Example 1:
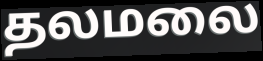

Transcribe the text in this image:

தலமலை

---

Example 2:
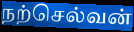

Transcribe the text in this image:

நற்செல்வன்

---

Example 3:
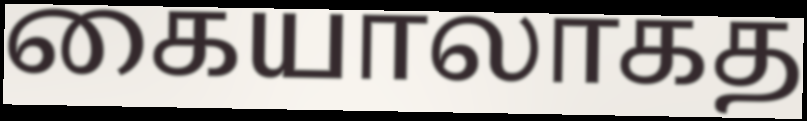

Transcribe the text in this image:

கையாலாகத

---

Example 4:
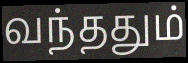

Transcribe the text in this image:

வந்ததும்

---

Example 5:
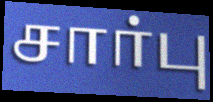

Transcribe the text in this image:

சார்பு